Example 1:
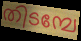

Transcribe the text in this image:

തിടമ്പേ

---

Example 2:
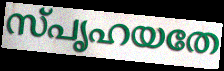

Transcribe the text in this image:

സ്പൃഹയതേ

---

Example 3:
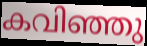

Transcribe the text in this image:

കവിഞ്ഞു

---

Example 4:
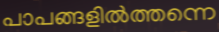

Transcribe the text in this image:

പാപങ്ങളിൽത്തന്നെ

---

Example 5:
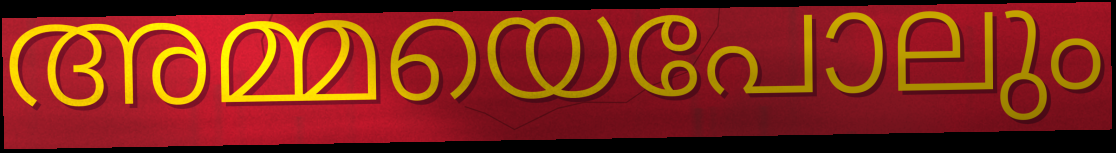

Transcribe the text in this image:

അമ്മയെപോലും